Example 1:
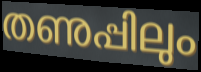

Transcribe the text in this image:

തണുപ്പിലും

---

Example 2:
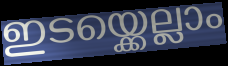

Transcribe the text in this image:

ഇടയ്ക്കെല്ലാം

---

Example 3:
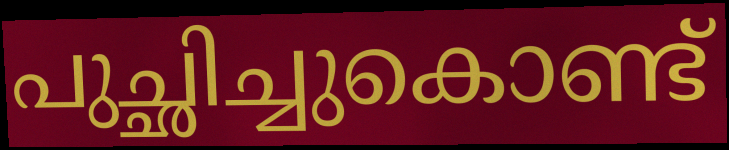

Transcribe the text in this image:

പുച്ഛിച്ചുകൊണ്ട്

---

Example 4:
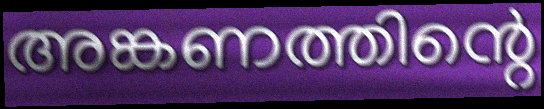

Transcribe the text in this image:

അങ്കണത്തിന്റെ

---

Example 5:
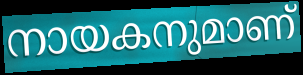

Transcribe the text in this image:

നായകനുമാണ്